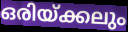
ഒരിയ്ക്കലും